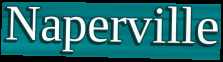
Naperville